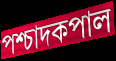
পশ্চাদকপাল